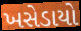
ખસેડાયો